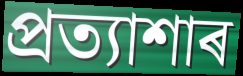
প্ৰত্যাশাৰ